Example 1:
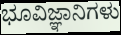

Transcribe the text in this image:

ಭೂವಿಜ್ಞಾನಿಗಳು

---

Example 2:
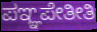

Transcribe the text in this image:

ಪಞ್ಞಪೇತೀತಿ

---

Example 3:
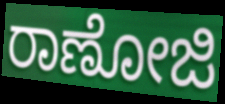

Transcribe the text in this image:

ರಾಣೋಜಿ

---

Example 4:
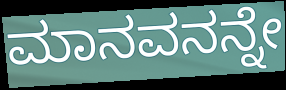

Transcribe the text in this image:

ಮಾನವನನ್ನೇ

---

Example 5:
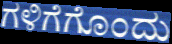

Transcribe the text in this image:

ಗಳಿಗೆಗೊಂದು